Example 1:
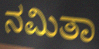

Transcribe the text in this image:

ನಮಿತಾ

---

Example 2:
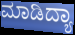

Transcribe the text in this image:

ಮಾಡಿದ್ಯಾ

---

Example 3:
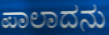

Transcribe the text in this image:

ಪಾಲಾದನು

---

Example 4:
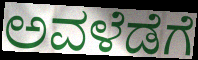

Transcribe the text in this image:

ಅವಳೆಡೆಗೆ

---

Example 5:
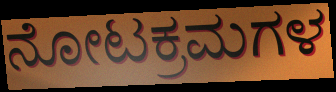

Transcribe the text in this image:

ನೋಟಕ್ರಮಗಳ